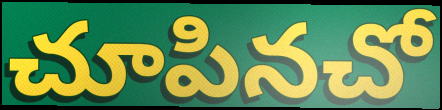
చూపినచో